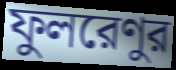
ফুলরেণুর